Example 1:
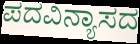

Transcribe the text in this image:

ಪದವಿನ್ಯಾಸದ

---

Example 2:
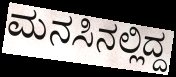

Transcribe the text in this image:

ಮನಸಿನಲ್ಲಿದ್ದ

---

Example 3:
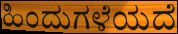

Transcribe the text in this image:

ಹಿಂದುಗಳೆಯದೆ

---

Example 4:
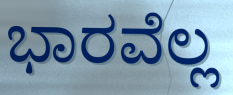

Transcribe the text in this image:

ಭಾರವೆಲ್ಲ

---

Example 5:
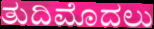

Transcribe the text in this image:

ತುದಿಮೊದಲು